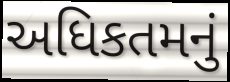
અધિકતમનું